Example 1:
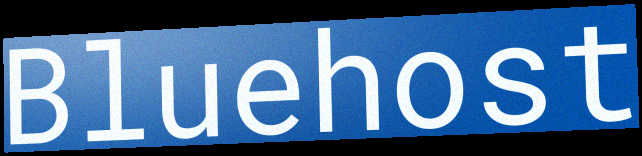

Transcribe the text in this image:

Bluehost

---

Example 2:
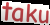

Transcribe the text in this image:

taku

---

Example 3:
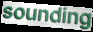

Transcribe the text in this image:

sounding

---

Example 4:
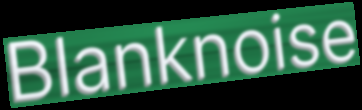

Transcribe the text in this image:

Blanknoise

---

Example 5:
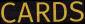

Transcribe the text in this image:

CARDS